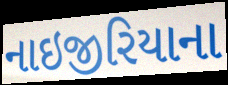
નાઇજીરિયાના